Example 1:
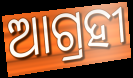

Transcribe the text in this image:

ଆଗ୍ରହୀ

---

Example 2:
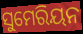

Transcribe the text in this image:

ସୁମେରିୟନ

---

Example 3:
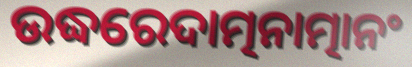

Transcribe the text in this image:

ଉଦ୍ଧରେଦାତ୍ମନାତ୍ମାନଂ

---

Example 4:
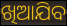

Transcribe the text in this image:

ଖିଆଯିବ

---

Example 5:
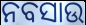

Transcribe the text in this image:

ନବସାଉ